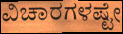
ವಿಚಾರಗಳಷ್ಟೇ